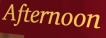
Afternoon